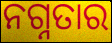
ନଗ୍ନତାର